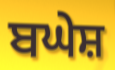
ਬਘੇਸ਼